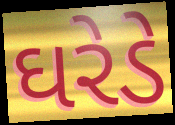
ઘરેડે